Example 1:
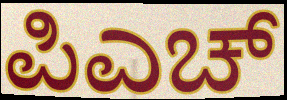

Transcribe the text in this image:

ಪಿಎಚ್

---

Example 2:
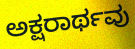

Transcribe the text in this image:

ಅಕ್ಷರಾರ್ಥವು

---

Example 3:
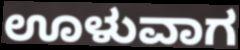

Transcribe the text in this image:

ಊಳುವಾಗ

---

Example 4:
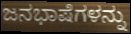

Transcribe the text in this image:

ಜನಭಾಷೆಗಳನ್ನು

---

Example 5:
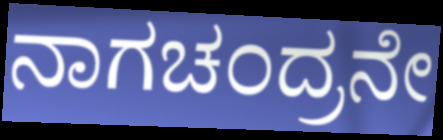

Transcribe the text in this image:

ನಾಗಚಂದ್ರನೇ